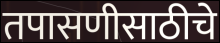
तपासणीसाठीचे